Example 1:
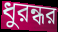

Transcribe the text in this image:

ধুরন্ধর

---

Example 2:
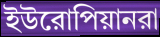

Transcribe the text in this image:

ইউরোপিয়ানরা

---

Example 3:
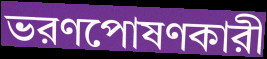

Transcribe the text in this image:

ভরণপোষণকারী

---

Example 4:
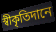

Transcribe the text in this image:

স্বীকৃতিদানে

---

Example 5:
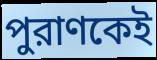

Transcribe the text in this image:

পুরাণকেই